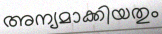
അന്യമാക്കിയതും